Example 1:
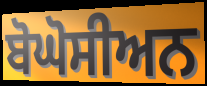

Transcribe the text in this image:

ਬੋਘੋਸੀਅਨ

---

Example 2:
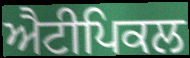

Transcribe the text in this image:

ਐਟੀਪਿਕਲ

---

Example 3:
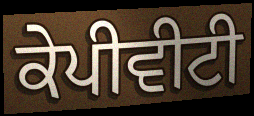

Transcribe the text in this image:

ਕੇਪੀਵੀਟੀ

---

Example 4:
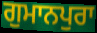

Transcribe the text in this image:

ਗੁਮਾਨਪੁਰਾ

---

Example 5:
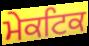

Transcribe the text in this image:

ਮੇਕਟਿਕ